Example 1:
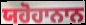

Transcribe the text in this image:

ਯਹੋਹਾਨਾਨ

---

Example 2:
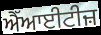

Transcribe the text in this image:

ਐੱਆਈਟੀਜ਼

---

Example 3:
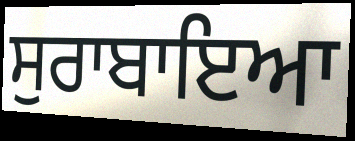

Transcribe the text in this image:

ਸੁਰਾਬਾਇਆ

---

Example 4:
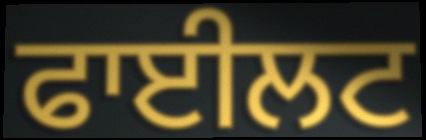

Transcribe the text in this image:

ਫਾਈਲਟ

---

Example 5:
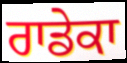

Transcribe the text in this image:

ਰਾਡੇਕਾ